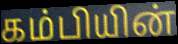
கம்பியின்